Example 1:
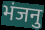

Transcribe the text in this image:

भंजनु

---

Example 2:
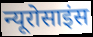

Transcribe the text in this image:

न्यूरोसाइंस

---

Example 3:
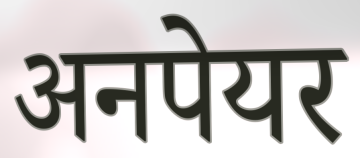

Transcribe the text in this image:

अनपेयर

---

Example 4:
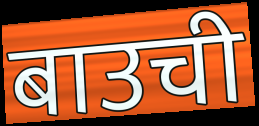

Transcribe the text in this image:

बाउची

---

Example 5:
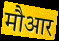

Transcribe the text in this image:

मौआर